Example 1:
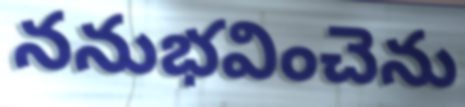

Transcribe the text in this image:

ననుభవించెను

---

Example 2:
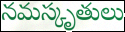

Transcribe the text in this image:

నమస్కృతులు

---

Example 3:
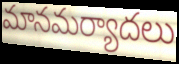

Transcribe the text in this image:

మానమర్యాదలు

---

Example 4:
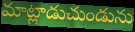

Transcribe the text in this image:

మాట్లాడుచుండును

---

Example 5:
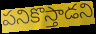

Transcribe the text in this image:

పనికొస్తాడని